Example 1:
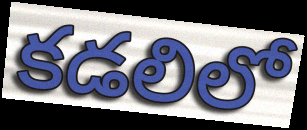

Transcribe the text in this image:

కడలిలో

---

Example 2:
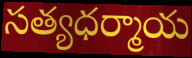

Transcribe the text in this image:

సత్యధర్మాయ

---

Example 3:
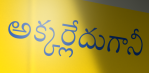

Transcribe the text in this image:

అక్కర్లేదుగానీ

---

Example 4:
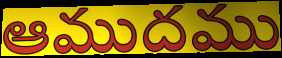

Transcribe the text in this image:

ఆముదము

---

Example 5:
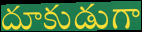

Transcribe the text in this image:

దూకుడుగా